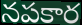
నపకార